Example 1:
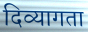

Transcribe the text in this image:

दिव्यागता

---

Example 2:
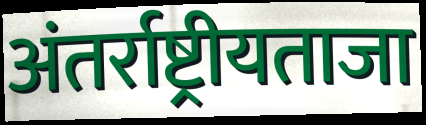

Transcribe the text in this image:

अंतर्राष्ट्रीयताजा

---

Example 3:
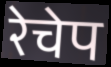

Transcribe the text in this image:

रेचेप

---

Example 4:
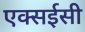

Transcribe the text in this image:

एक्सईसी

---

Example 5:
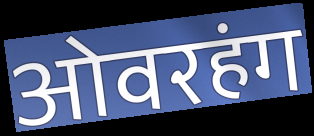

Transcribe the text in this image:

ओवरहंग